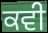
ਕਵੀ